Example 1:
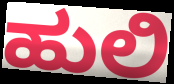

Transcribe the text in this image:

ಹುಲಿ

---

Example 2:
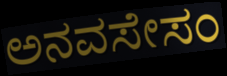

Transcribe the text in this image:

ಅನವಸೇಸಂ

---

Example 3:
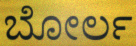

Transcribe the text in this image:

ಬೋರ್ಲ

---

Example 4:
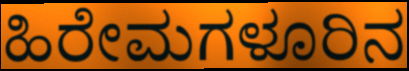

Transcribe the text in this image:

ಹಿರೇಮಗಳೂರಿನ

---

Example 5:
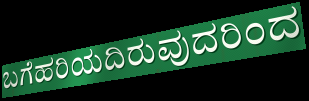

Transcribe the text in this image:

ಬಗೆಹರಿಯದಿರುವುದರಿಂದ